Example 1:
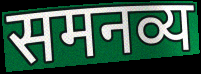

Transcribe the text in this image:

समनव्य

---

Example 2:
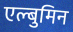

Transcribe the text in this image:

एल्बुमिन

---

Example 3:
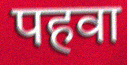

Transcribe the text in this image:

पहवा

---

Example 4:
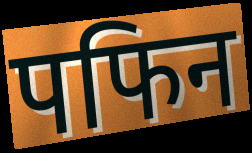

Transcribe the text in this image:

पफिन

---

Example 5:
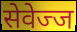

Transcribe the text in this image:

सेवेज्ज